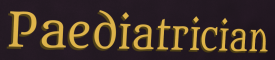
Paediatrician